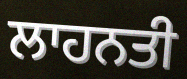
ਲਾਹਨਤੀ